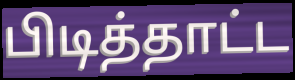
பிடித்தாட்ட